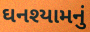
ઘનશ્યામનું